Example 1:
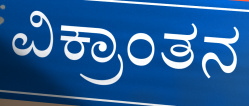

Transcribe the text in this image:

ವಿಕ್ರಾಂತನ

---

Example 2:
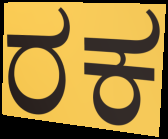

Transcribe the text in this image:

ರಕ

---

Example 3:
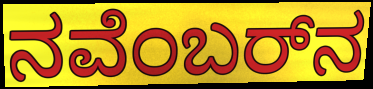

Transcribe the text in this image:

ನವೆಂಬರ್‌ನ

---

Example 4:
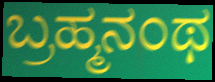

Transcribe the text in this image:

ಬ್ರಹ್ಮನಂಥ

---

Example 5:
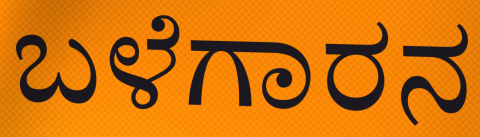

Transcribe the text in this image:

ಬಳೆಗಾರನ